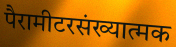
पैरामीटरसंख्यात्मक